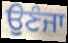
ਉਣੰਜਾ